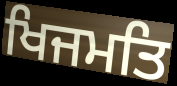
ਖਿਜਮਤਿ